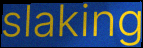
slaking